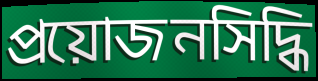
প্রয়োজনসিদ্ধি